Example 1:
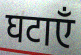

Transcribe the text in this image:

घटाएँ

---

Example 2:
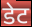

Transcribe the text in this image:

डेट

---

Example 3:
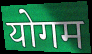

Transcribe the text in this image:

योगम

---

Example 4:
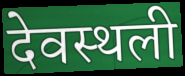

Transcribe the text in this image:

देवस्थली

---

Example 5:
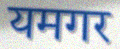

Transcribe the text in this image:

यमगर